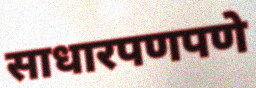
साधारपणपणे